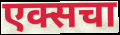
एक्सचा